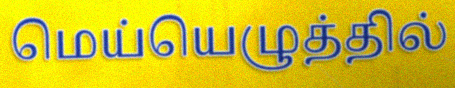
மெய்யெழுத்தில்